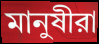
মানুষীরা